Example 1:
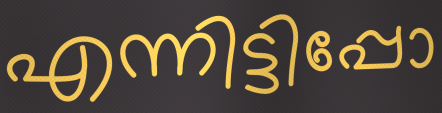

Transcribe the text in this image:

എന്നിട്ടിപ്പോ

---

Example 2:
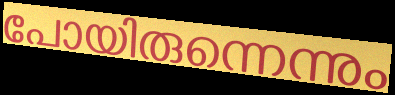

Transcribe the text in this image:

പോയിരുന്നെന്നും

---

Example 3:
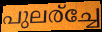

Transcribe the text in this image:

പുലര്ച്ചേ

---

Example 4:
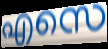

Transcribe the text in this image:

എസെ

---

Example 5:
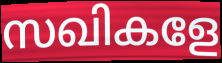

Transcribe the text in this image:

സഖികളേ